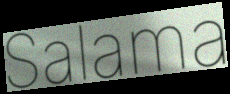
Salama